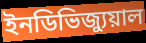
ইনডিভিজ্যুয়াল